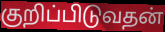
குறிப்பிடுவதன்